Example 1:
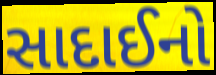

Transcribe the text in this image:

સાદાઈનો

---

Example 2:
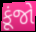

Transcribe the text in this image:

કૂંજો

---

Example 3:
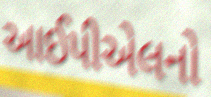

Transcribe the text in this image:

આઈપીએલનો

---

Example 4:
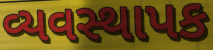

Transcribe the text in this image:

વ્યવસ્થાપક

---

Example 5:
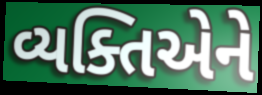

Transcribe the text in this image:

વ્યક્તિએને